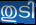
തുടി